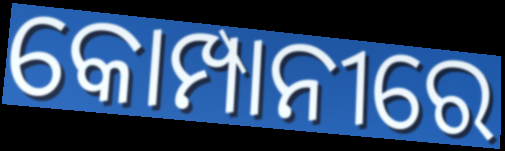
କୋମ୍ପାନୀରେ